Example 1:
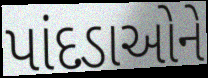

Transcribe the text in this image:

પાંદડાઓને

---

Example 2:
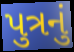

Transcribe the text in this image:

પુત્રનું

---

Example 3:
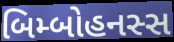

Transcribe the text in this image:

બિમ્બોહનસ્સ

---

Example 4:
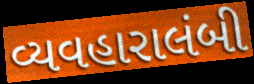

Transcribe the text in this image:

વ્યવહારાલંબી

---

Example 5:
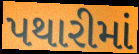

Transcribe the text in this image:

પથારીમાં